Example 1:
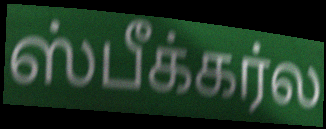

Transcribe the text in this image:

ஸ்பீக்கர்ல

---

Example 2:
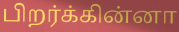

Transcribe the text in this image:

பிறர்க்கின்னா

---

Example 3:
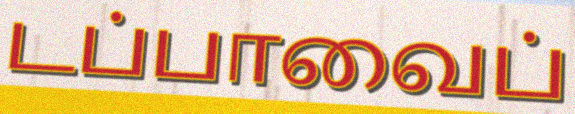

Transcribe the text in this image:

டப்பாவைப்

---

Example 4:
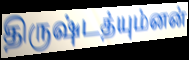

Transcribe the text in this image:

திருஷ்டத்யும்னன்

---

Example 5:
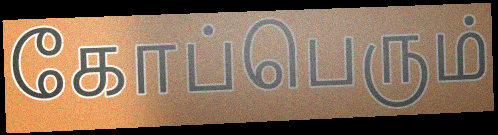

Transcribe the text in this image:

கோப்பெரும்